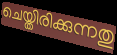
ചെയ്തിരിക്കുന്നതു